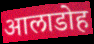
आलाडोह